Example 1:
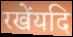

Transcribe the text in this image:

रखेंयदि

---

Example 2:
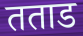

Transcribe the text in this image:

तताड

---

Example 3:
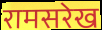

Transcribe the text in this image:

रामसरेख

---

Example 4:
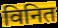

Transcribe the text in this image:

विनित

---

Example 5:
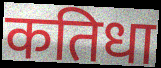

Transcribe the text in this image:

कतिधा